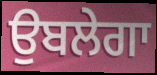
ਉਬਲੇਗਾ